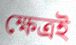
ক্ষেত্রই